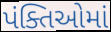
પંક્તિઓમાં